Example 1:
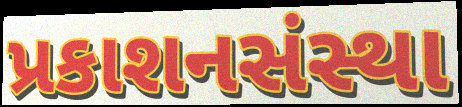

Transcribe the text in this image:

પ્રકાશનસંસ્થા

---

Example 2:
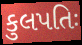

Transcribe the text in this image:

કુલપતિઃ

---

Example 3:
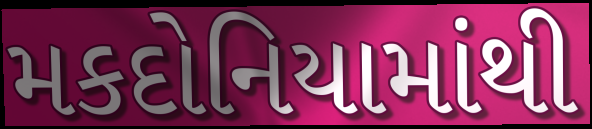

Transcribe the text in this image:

મકદોનિયામાંથી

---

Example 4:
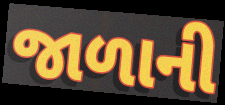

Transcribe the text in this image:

જાળાની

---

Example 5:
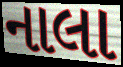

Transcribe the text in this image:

નાલા